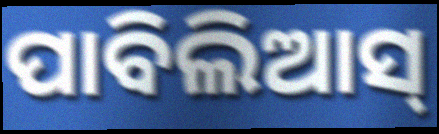
ପାବିଲିଆସ୍